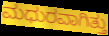
ಮಧುರವಾಗಿತ್ತು